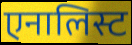
एनालिस्ट